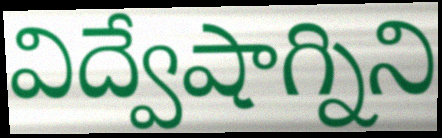
విద్వేషాగ్నిని